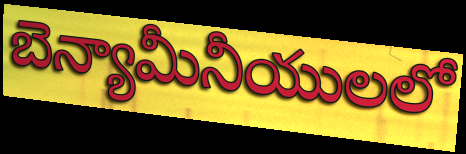
బెన్యామీనీయులలో